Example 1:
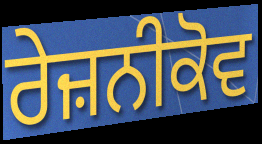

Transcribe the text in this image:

ਰੇਜ਼ਨੀਕੋਵ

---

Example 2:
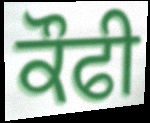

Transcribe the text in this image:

ਕੌਫੀ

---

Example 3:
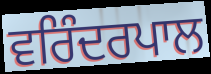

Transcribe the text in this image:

ਵਰਿੰਦਰਪਾਲ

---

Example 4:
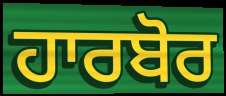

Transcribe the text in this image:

ਹਾਰਬੋਰ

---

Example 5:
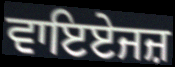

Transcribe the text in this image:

ਵਾਇਏਜਜ਼